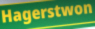
Hagerstwon